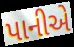
પાનીએ